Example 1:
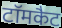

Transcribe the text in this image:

टॉमकैट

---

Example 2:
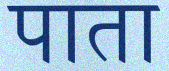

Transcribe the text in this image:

पाता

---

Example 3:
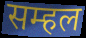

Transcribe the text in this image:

सम्हल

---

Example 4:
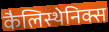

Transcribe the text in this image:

कैलिस्थेनिक्स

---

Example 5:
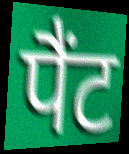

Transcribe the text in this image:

पैंट